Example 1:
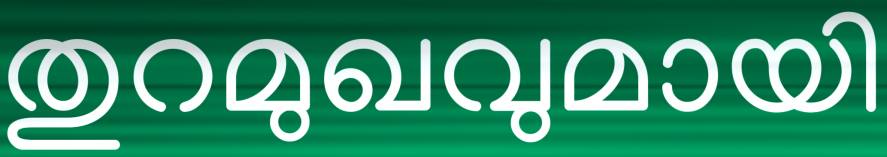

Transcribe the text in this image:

തുറമുഖവുമായി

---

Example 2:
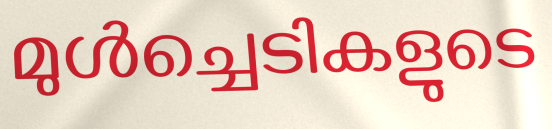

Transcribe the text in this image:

മുൾച്ചെടികളുടെ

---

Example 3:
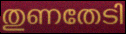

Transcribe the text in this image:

തുണതേടി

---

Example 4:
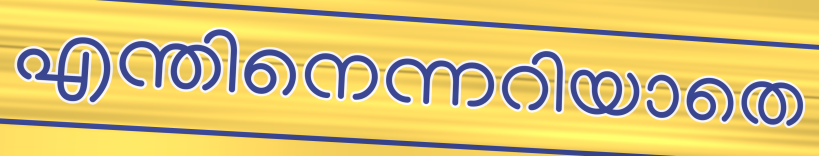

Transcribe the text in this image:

എന്തിനെന്നറിയാതെ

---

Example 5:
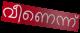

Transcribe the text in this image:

വീണെന്ന്